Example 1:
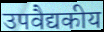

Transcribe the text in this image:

उपवैद्यकीय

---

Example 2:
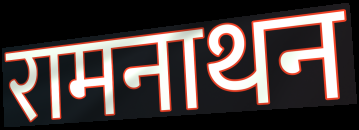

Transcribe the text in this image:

रामनाथन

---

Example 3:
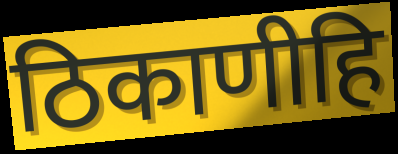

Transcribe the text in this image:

ठिकाणीहि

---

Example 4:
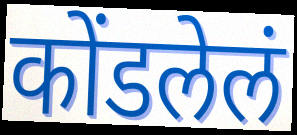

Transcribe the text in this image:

कोंडलेलं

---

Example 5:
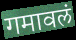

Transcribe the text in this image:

गमावलं